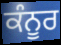
ਕੰਨੂਰ